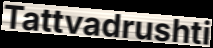
Tattvadrushti